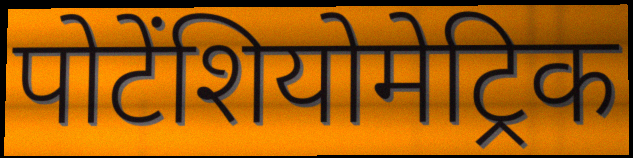
पोटेंशियोमेट्रिक